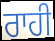
ਰਾਹੀ